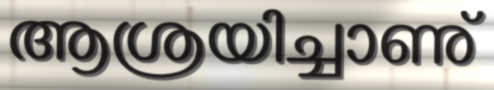
ആശ്രയിച്ചാണു്